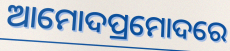
ଆମୋଦପ୍ରମୋଦରେ